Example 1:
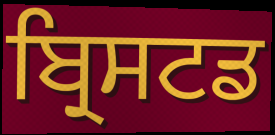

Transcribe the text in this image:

ਬ੍ਰਿਸਟਡ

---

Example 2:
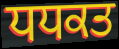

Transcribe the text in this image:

ਧਧਕਤ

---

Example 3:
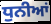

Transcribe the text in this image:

ਧੁਨੀਆਂ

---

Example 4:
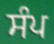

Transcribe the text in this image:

ਸੰਪ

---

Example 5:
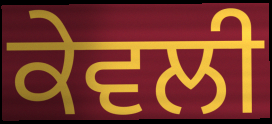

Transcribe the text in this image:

ਕੇਵਲੀ